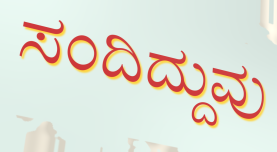
ಸಂದಿದ್ದುವು